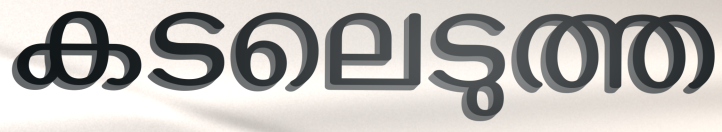
കടലെടുത്ത